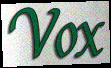
Vox